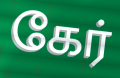
கேர்